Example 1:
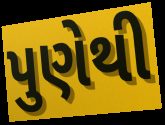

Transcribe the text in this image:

પુણેથી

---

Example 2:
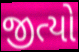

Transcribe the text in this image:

જીત્યો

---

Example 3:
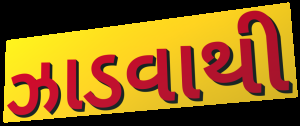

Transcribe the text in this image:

ઝાડવાથી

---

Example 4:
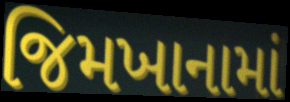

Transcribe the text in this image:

જિમખાનામાં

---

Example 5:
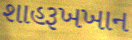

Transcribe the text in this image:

શાહરૂખખાન